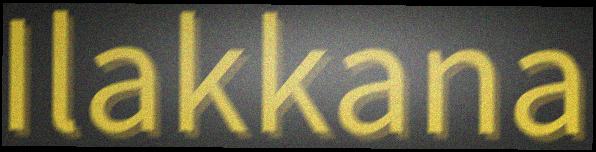
Ilakkana